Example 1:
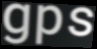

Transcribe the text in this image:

gps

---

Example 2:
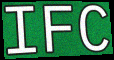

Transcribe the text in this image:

IFC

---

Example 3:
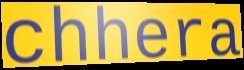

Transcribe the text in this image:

chhera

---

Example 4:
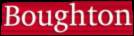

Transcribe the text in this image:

Boughton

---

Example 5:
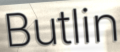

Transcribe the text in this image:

Butlin